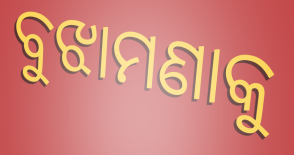
ବୁଝାମଣାକୁ